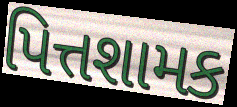
પિત્તશામક